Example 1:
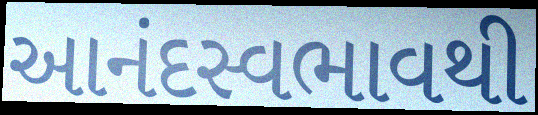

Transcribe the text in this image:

આનંદસ્વભાવથી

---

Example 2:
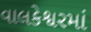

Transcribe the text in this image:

વાલકેશ્વરમાં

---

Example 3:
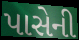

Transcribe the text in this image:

પાસેની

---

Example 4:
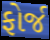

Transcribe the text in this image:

ફોર્જ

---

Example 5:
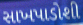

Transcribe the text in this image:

સાખપાડોશી